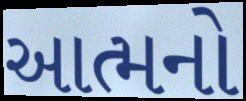
આત્મનો